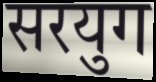
सरयुग